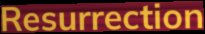
Resurrection